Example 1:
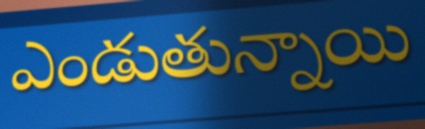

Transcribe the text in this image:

ఎండుతున్నాయి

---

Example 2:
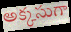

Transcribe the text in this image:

అక్కసుగా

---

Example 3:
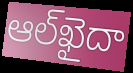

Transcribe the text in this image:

ఆల్‌ఖైదా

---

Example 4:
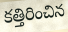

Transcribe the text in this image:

కత్తిరించిన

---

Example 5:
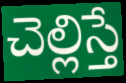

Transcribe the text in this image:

చెల్లిస్తే